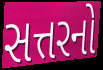
સત્તરનો